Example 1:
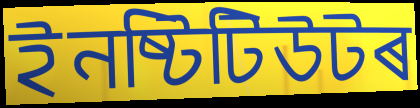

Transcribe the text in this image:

ইনষ্টিটিউটৰ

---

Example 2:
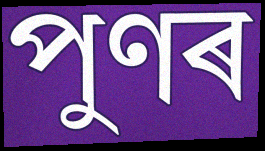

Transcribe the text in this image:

পুণৰ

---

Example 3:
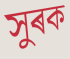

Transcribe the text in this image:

সুৰক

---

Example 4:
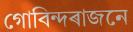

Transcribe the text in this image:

গোবিন্দৰাজনে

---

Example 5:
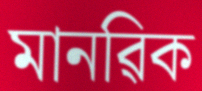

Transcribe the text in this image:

মানৱিক